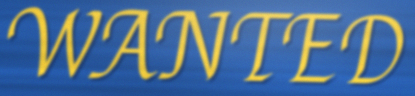
WANTED